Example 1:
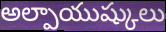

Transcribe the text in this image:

అల్పాయుష్కులు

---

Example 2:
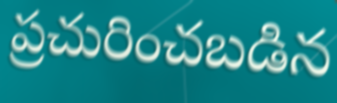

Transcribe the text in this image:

ప్రచురించబడిన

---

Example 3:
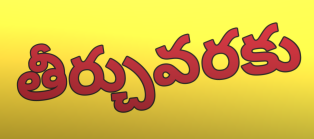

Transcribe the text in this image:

తీర్చువరకు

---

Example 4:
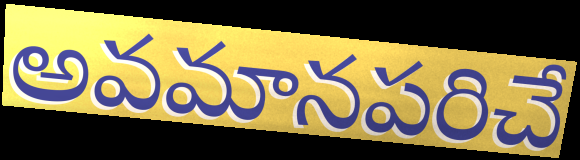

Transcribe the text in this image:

అవమానపరిచే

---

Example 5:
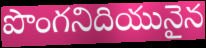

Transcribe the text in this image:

పొంగనిదియునైన